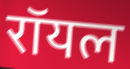
रॉयल